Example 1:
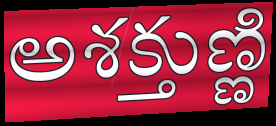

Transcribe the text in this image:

అశక్తుణ్ణి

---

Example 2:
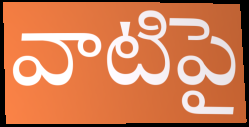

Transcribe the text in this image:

వాటిపై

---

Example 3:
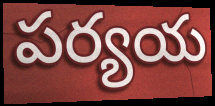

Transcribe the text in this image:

పర్యయ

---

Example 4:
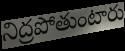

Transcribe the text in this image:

నిద్రపోతుంటారు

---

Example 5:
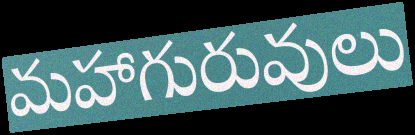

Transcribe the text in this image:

మహాగురువులు